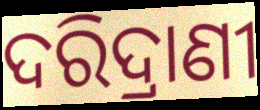
ଦରିଦ୍ରାଣୀ